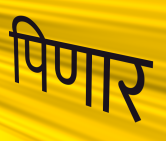
पिणार